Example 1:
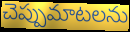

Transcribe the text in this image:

చెప్పుమాటలను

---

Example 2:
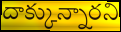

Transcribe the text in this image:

దాక్కున్నారని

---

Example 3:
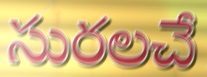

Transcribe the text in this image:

సురలచే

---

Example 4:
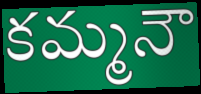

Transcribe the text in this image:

కమ్మనౌ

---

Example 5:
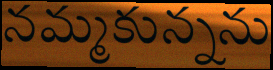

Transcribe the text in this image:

నమ్మకున్నను